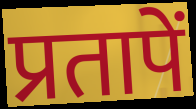
प्रतापें